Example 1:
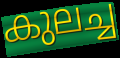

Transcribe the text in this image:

കുലച്ച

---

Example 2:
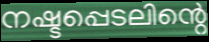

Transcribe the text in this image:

നഷ്ടപ്പെടലിന്റെ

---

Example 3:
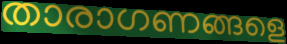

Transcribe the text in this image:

താരാഗണങ്ങളെ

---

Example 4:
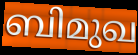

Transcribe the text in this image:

ബിമുഖ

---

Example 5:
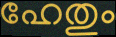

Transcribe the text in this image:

ഹേതും